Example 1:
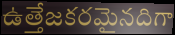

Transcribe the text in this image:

ఉత్తేజకరమైనదిగా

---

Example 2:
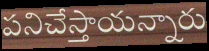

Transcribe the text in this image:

పనిచేస్తాయన్నారు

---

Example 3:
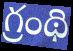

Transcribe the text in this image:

గ్రంథి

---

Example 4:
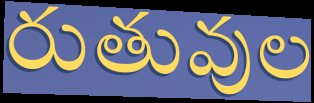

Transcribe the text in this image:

రుతువుల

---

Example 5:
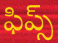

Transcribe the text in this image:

ఫిప్స్